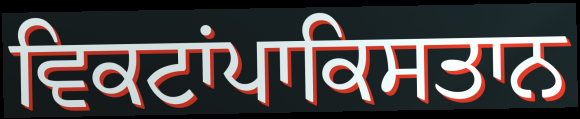
ਵਿਕਟਾਂਪਾਕਿਸਤਾਨ